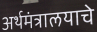
अर्थमंत्रालयाचे